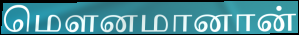
மௌனமானான்